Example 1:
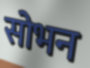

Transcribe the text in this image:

सोभन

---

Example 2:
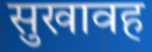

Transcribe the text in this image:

सुखावह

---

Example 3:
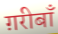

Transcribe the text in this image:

ग़रीबाँ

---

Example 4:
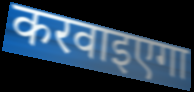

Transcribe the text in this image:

करवाइएगा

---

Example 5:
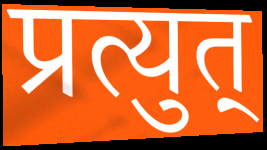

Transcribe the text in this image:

प्रत्युत्